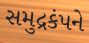
સમુદ્રકંપને